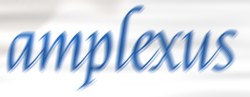
amplexus